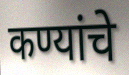
कण्यांचे